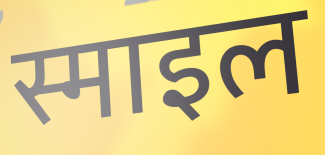
स्माइल